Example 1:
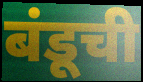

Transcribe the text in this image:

बंडूची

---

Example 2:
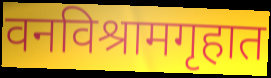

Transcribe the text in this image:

वनविश्रामगृहात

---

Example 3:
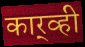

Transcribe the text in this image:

कार्व्ही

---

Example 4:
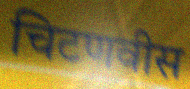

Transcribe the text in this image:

चिटणवीस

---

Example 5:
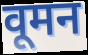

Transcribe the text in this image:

वूमन